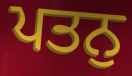
ਪਤਨੁ